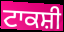
ਟਾਕਸ਼ੀ